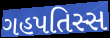
ગહપતિસ્સ